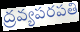
ద్రవ్యపరపతి